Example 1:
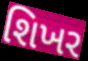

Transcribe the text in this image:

શિખર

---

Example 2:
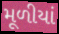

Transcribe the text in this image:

મૂળીયાં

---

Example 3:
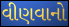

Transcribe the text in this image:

વીણવાનો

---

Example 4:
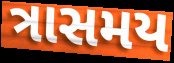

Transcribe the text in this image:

ત્રાસમય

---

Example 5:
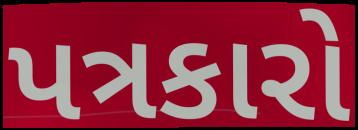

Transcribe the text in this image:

પત્રકારો